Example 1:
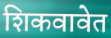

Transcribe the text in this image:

शिकवावेत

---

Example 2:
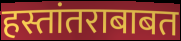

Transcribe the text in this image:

हस्तांतराबाबत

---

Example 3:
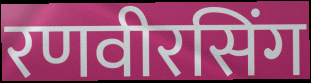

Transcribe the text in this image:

रणवीरसिंग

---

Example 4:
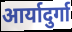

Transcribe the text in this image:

आर्यादुर्गा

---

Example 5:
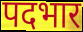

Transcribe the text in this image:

पदभार